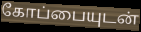
கோப்பையுடன்